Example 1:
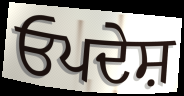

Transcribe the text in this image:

ਓਪਦੇਸ਼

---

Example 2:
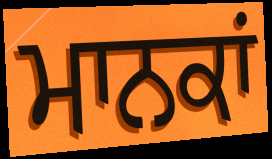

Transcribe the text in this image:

ਮਾਨਕਾਂ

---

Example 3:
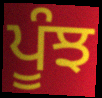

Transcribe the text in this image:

ਪੂੰਝ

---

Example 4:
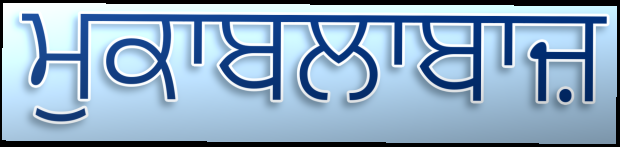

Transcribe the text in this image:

ਮੁਕਾਬਲਾਬਾਜ਼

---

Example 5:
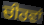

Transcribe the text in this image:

ਚੀਰਵਾਂ